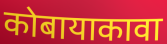
कोबायाकावा